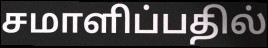
சமாளிப்பதில்